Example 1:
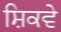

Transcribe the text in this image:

ਸ਼ਿਕਵੇ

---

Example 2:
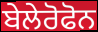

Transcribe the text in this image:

ਬੇਲੇਰੋਫੋਨ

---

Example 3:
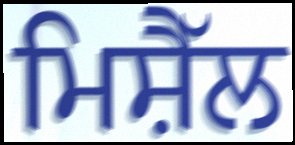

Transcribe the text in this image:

ਮਿਸ਼ੈੱਲ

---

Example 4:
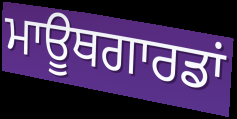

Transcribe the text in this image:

ਮਾਊਥਗਾਰਡਾਂ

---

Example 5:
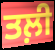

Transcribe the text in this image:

ਤਲ਼ੀ